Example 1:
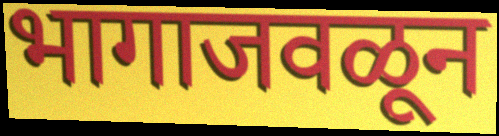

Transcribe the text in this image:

भागाजवळून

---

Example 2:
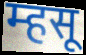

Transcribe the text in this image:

म्हसू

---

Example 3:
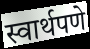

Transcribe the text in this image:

स्वार्थपणे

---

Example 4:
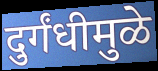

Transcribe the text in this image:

दुर्गंधीमुळे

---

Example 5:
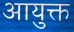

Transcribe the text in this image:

आयुक्त